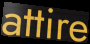
attire